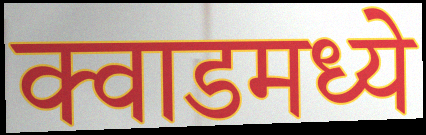
क्वाडमध्ये